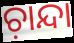
ଚ଼ାନ୍ଦା